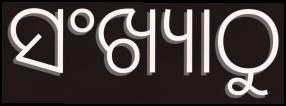
ସଂଖ୍ୟାଠୁ